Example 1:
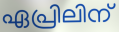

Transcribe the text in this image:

ഏപ്രിലിന്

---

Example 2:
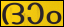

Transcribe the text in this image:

ദാം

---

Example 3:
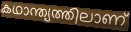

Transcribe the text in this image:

കഥാന്ത്യത്തിലാണ്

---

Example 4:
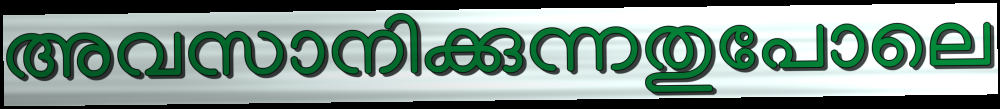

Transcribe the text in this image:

അവസാനിക്കുന്നതുപോലെ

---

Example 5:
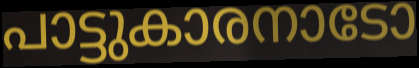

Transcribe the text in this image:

പാട്ടുകാരനാടോ